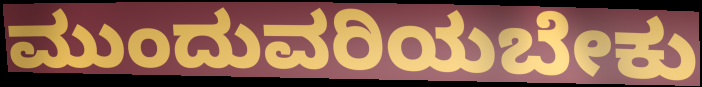
ಮುಂದುವರಿಯಬೇಕು